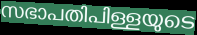
സഭാപതിപിള്ളയുടെ